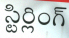
స్టిర్లింగ్